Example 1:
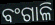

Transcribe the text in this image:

ବଂଗାଳି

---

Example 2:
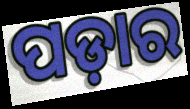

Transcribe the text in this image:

ପଡ଼ାର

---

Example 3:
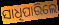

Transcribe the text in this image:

ସାଧିପାରିଲେ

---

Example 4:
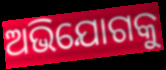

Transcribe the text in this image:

ଅଭିଯୋଗକୁ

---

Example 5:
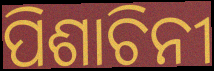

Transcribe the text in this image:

ପିଶାଚିନୀ